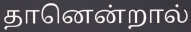
தானென்றால்